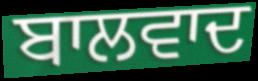
ਬਾਲਵਾਦ